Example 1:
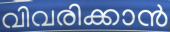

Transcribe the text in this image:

വിവരിക്കാൻ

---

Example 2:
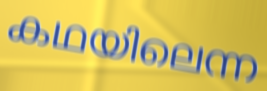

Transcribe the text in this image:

കഥയിലെന്ന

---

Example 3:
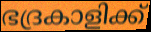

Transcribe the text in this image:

ഭദ്രകാളിക്ക്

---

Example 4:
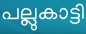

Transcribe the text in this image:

പല്ലുകാട്ടി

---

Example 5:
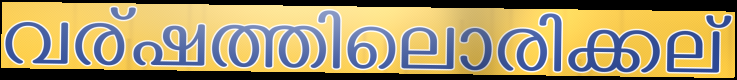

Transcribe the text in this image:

വര്ഷത്തിലൊരിക്കല്